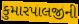
કુમારપાલજીની